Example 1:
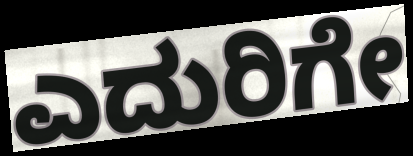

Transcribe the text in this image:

ಎದುರಿಗೇ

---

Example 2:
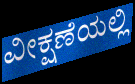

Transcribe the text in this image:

ವೀಕ್ಷಣೆಯಲ್ಲಿ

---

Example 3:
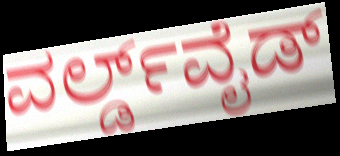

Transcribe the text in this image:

ವರ್ಲ್ಡ್‌ವೈಡ್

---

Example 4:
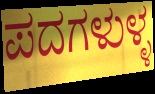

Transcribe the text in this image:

ಪದಗಳುಳ್ಳ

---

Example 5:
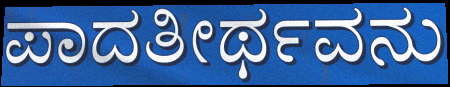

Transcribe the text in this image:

ಪಾದತೀರ್ಥವನು